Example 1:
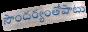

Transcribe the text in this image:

సౌందర్యంతోపాటు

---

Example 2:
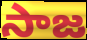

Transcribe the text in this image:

సాజ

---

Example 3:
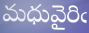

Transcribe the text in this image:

మధువైరిఁ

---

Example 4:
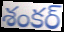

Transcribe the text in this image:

శంకర్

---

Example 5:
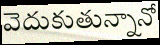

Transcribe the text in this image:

వెదుకుతున్నానో